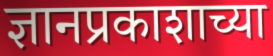
ज्ञानप्रकाशाच्या